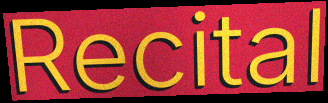
Recital